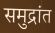
समुद्रांत